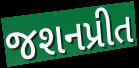
જશનપ્રીત